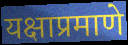
यक्षाप्रमाणे